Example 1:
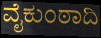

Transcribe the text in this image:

ವೈಕುಂಠಾದಿ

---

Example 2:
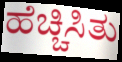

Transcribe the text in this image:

ಹೆಚ್ಚಿಸಿತು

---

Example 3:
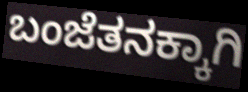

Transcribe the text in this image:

ಬಂಜೆತನಕ್ಕಾಗಿ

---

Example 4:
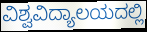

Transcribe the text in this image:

ವಿಶ್ವವಿದ್ಯಾಲಯದಲ್ಲಿ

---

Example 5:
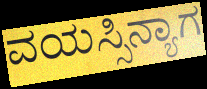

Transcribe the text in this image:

ವಯಸ್ಸಿನ್ಯಾಗ